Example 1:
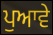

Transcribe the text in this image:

ਪੁਆਵੇ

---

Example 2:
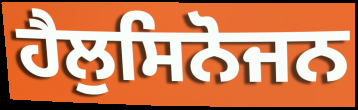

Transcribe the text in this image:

ਹੈਲੁਸਿਨੋਜਨ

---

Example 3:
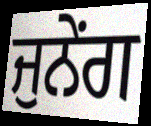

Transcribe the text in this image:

ਜੁਨੇਂਗ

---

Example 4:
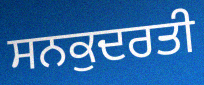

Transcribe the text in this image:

ਸਨਕੁਦਰਤੀ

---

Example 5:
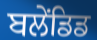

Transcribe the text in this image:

ਬਲੇਂਡਿਡ